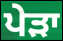
ਪੇੜਾ